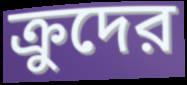
ক্রুদের